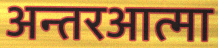
अन्तरआत्मा